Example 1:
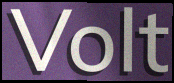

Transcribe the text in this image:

Volt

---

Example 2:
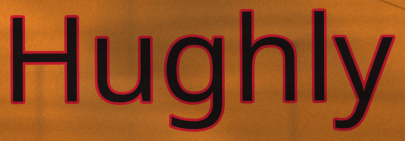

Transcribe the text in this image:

Hughly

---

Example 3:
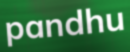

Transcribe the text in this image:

pandhu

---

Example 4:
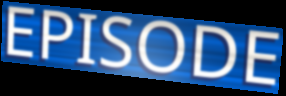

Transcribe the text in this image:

EPISODE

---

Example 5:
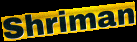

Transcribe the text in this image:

Shriman